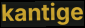
kantige